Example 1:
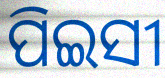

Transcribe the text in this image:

ପିଇସୀ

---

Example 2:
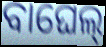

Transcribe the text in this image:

ବାଘେଲ୍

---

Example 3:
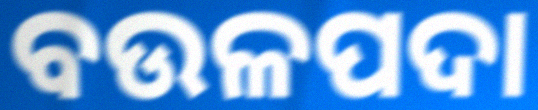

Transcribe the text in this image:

ବଉଳପଦା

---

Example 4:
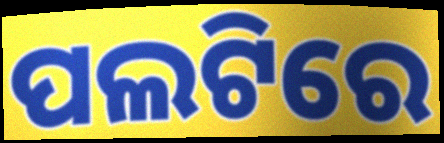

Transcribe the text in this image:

ପଲଟିରେ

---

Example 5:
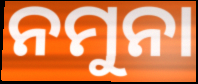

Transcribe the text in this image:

ନମୁନା